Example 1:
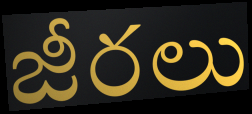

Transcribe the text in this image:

జీరలు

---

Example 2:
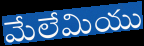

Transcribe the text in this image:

మేలేమియు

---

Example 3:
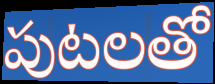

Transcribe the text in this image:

పుటలతో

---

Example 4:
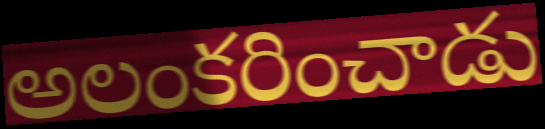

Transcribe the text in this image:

అలంకరించాడు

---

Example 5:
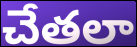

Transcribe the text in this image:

చేతలా